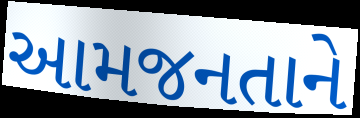
આમજનતાને